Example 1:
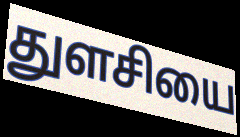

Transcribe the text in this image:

துளசியை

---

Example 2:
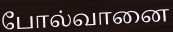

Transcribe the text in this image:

போல்வானை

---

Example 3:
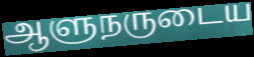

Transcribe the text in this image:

ஆளுநருடைய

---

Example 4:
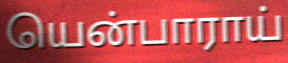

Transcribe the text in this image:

யென்பாராய்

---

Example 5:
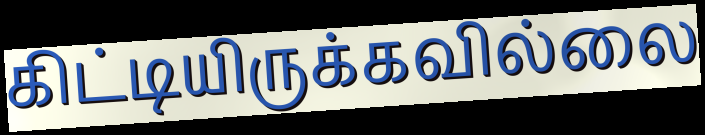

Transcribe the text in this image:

கிட்டியிருக்கவில்லை